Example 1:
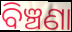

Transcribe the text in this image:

ବିଞ୍ଚଣା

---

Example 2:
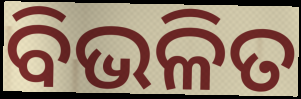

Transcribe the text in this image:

ବିଭଳିତ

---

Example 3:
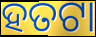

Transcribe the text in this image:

ହତଟା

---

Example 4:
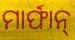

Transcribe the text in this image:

ମାର୍ଫାନ୍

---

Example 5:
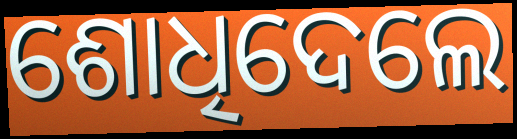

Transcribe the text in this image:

ଶୋଧିଦେଲେ